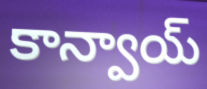
కాన్వాయ్